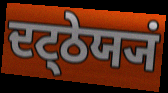
ਦਟ੍ਠੇਯ੍ਯਂ